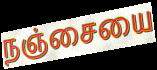
நஞ்சையை